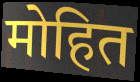
मोहित